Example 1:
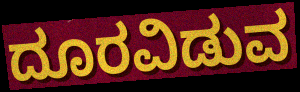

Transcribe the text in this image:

ದೂರವಿಡುವ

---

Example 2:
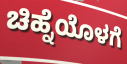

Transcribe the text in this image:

ಚಿಹ್ನೆಯೊಳಗೆ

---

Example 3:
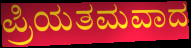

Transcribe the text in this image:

ಪ್ರಿಯತಮವಾದ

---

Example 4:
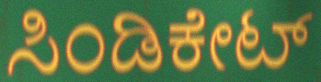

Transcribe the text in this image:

ಸಿಂಡಿಕೇಟ್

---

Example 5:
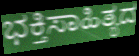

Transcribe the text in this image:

ಭಕ್ತಿಸಾಹಿತ್ಯದ